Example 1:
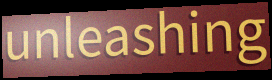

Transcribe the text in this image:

unleashing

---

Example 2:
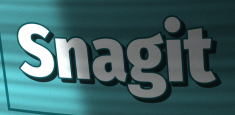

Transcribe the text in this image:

Snagit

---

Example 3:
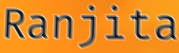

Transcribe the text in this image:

Ranjita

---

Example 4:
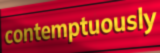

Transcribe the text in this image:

contemptuously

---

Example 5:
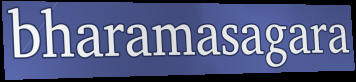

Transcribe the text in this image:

bharamasagara